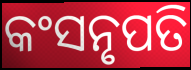
କଂସନୃପତି